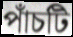
পাঁচটি